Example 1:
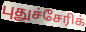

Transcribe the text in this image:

புதுச்சேரிக்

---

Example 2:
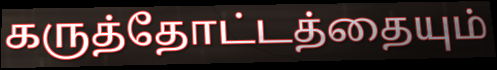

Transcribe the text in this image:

கருத்தோட்டத்தையும்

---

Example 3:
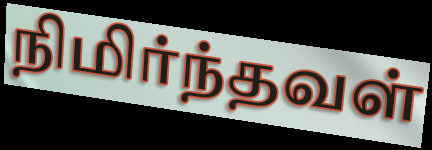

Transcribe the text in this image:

நிமிர்ந்தவள்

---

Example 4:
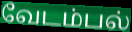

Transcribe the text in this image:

வேடம்பல்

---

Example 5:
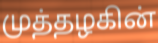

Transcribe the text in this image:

முத்தழகின்